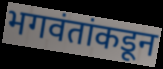
भगवंतांकडून